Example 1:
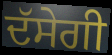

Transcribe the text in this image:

ਦੱਸੇਗੀ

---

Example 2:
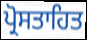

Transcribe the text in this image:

ਪ੍ਰੋਸਤਾਹਿਤ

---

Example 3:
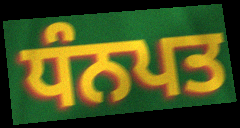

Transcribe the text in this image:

ਧੰਨਪਤ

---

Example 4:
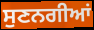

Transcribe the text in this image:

ਸੁਣਨਗੀਆਂ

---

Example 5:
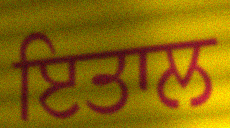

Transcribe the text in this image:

ਇਤਾਲ